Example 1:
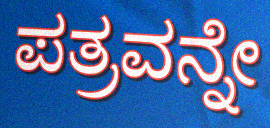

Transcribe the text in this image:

ಪತ್ರವನ್ನೇ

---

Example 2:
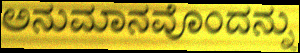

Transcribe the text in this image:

ಅನುಮಾನವೊಂದನ್ನು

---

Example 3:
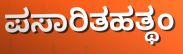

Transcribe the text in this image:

ಪಸಾರಿತಹತ್ಥಂ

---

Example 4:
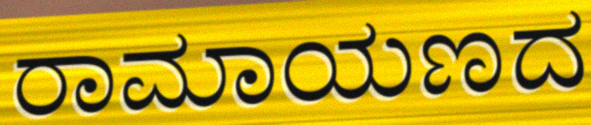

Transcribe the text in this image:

ರಾಮಾಯಣದ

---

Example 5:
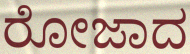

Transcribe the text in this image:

ರೋಜಾದ